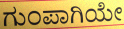
ಗುಂಪಾಗಿಯೇ